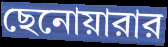
ছেনোয়ারার